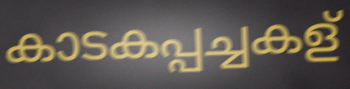
കാടകപ്പച്ചകള്